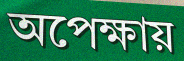
অপেক্ষায়